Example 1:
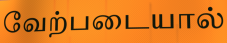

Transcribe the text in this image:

வேற்படையால்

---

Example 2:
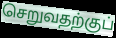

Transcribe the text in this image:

செறுவதற்குப்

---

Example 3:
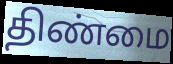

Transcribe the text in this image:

திண்மை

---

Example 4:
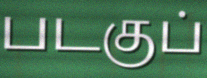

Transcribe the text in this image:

படகுப்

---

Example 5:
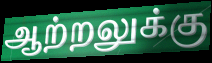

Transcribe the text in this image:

ஆற்றலுக்கு